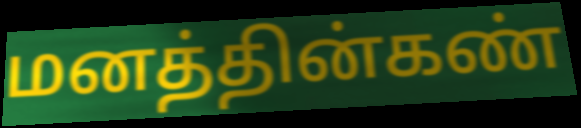
மனத்தின்கண்